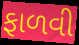
ફાળવી